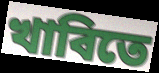
খাবিতে